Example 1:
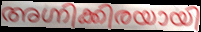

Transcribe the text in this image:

അഗ്നിക്കിരയായി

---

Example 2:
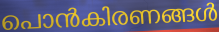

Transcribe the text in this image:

പൊൻകിരണങ്ങൾ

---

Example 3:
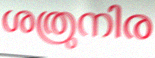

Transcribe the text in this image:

ശത്രുനിര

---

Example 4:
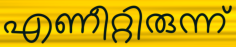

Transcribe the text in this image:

എണീറ്റിരുന്ന്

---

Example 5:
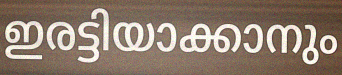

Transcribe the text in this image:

ഇരട്ടിയാക്കാനും